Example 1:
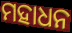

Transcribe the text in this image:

ମହାଧନ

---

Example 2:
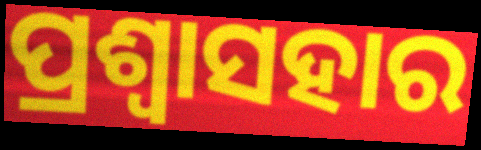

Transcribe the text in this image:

ପ୍ରଶ୍ଵାସହାର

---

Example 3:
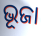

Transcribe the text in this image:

ଭୂଜା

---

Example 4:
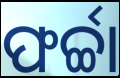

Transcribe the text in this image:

ଫର୍ଚ୍ଚା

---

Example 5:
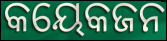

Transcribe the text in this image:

କୟେକଜନ